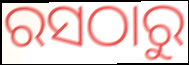
ରସଠାରୁ